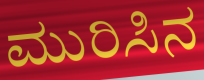
ಮುರಿಸಿನ